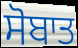
ਸੋਬਾਤ